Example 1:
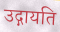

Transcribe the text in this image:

उद्गायति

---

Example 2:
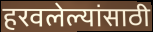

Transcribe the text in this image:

हरवलेल्यांसाठी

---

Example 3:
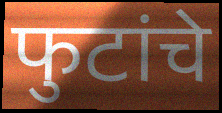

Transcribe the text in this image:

फुटांचे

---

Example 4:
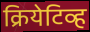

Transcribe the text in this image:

क्रियेटिव्ह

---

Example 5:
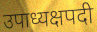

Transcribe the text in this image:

उपाध्यक्षपदी